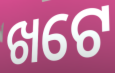
ଖଟେ